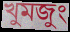
খুমজুং